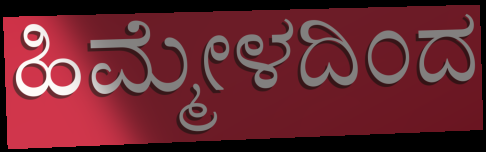
ಹಿಮ್ಮೇಳದಿಂದ